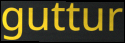
guttur